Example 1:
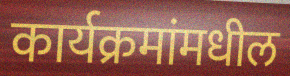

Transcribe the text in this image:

कार्यक्रमांमधील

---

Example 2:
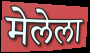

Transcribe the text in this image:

मेलेला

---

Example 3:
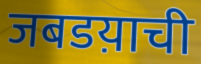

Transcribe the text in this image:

जबडय़ाची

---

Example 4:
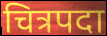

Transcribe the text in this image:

चित्रपदा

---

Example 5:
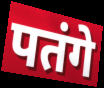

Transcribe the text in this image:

पतंगे